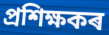
প্ৰশিক্ষকৰ